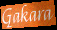
Gakara